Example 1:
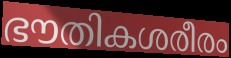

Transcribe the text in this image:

ഭൗതികശരീരം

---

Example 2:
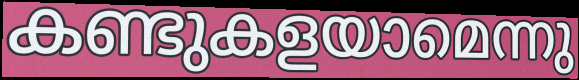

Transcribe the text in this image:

കണ്ടുകളയാമെന്നു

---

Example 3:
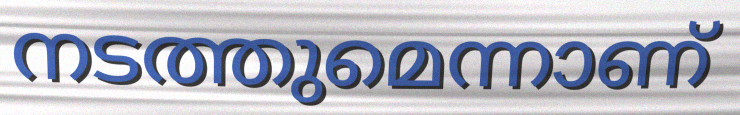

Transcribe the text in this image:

നടത്തുമെന്നാണ്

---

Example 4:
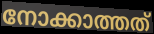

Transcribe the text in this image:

നോക്കാത്തത്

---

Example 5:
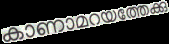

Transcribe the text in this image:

കാണാമറയത്തേക്കു